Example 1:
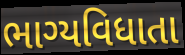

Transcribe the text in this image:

ભાગ્યવિધાતા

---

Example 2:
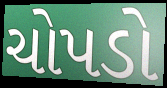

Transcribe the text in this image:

ચોપડો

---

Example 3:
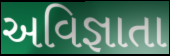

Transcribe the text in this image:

અવિજ્ઞાતા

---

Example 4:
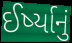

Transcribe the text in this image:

ઈર્ષ્યાનું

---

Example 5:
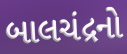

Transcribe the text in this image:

બાલચંદ્રનો